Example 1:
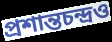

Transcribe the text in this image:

প্রশান্তচন্দ্রও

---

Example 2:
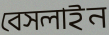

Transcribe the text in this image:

বেসলাইন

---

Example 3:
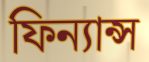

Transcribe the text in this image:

ফিন্যান্স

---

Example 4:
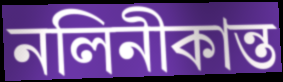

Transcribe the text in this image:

নলিনীকান্ত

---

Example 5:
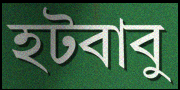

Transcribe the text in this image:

হটবাবু